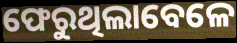
ଫେରୁଥିଲାବେଳେ